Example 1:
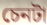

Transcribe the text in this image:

চেনটা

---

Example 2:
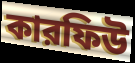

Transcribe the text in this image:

কারফিউ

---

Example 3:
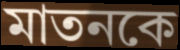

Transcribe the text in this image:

মাতনকে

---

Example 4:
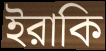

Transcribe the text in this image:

ইরাকি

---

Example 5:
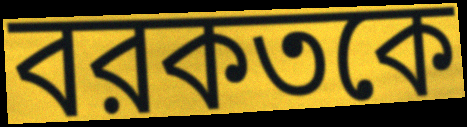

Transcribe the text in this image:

বরকতকে